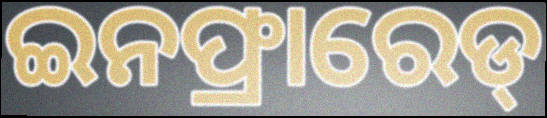
ଇନଫ୍ରାରେଡ୍